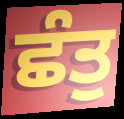
ਛੰਤੁ